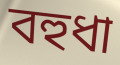
বহুধা